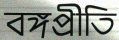
বঙ্গপ্রীতি